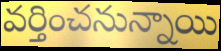
వర్తించనున్నాయి